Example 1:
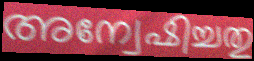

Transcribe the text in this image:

അന്വേഷിച്ചതു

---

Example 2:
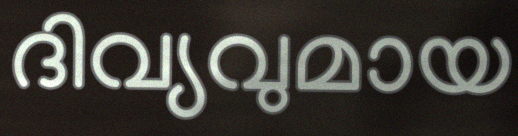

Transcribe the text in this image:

ദിവ്യവുമായ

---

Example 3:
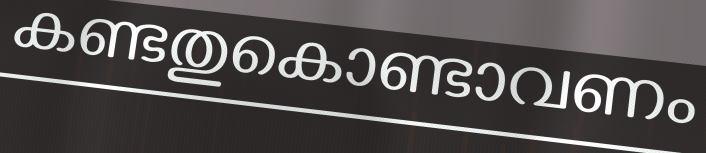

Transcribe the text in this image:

കണ്ടതുകൊണ്ടാവണം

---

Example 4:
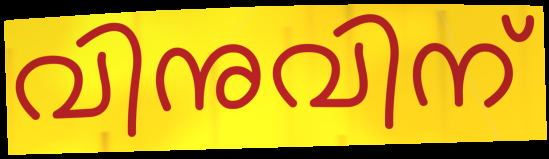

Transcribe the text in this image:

വിനുവിന്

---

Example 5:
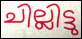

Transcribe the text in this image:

ചില്ലിട്ടു